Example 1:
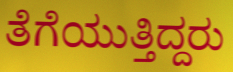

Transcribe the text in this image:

ತೆಗೆಯುತ್ತಿದ್ದರು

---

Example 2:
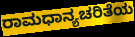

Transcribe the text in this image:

ರಾಮಧಾನ್ಯಚರಿತೆಯ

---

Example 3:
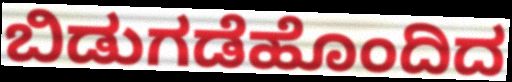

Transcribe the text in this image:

ಬಿಡುಗಡೆಹೊಂದಿದ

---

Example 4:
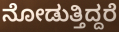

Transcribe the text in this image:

ನೋಡುತ್ತಿದ್ದರೆ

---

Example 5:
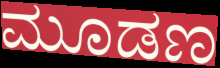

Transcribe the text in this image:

ಮೂಡಣ